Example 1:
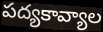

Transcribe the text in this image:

పద్యకావ్యాల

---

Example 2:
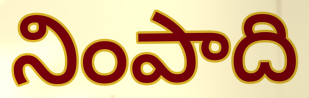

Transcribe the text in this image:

నింపాది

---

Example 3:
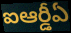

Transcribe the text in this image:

ఐఆర్డీఏ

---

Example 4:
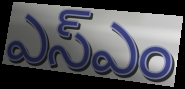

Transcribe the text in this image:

ఎస్ఎం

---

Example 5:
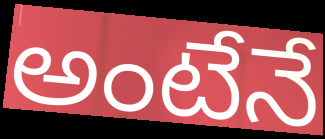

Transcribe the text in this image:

అంటేనే